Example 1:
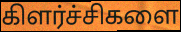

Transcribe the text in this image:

கிளர்ச்சிகளை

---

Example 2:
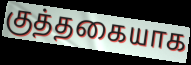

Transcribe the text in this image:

குத்தகையாக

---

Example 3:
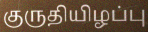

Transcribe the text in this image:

குருதியிழப்பு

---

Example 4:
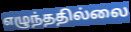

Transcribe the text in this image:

எழுந்ததில்லை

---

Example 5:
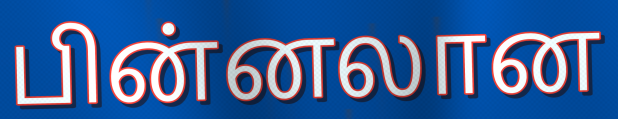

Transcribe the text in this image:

பின்னலான